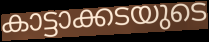
കാട്ടാക്കടയുടെ